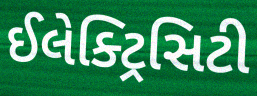
ઈલેક્ટ્રિસિટી